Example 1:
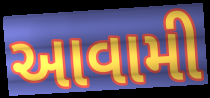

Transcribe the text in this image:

આવામી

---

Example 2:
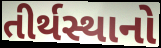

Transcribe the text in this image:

તીર્થસ્થાનો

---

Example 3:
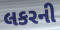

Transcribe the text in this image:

લકરની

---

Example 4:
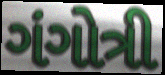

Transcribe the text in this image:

ગંગોત્રી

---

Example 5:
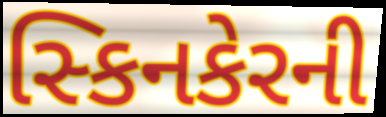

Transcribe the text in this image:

સ્કિનકેરની